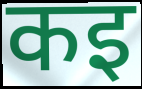
कइ